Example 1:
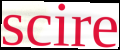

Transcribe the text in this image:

scire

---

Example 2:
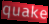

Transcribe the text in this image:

quake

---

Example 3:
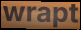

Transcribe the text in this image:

wrapt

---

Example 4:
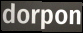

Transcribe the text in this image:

dorpon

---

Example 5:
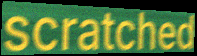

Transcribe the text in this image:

scratched